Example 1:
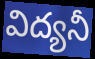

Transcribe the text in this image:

విద్యనీ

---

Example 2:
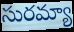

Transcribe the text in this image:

సురమ్యా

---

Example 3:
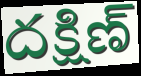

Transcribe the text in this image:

దక్షిణ్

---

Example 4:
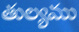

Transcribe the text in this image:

తుల్యము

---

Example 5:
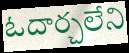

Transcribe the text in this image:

ఓదార్చలేని